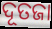
ଦୂତଜା